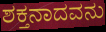
ಶಕ್ತನಾದವನು